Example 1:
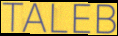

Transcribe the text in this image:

TALEB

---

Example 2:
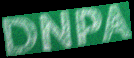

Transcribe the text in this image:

DNPA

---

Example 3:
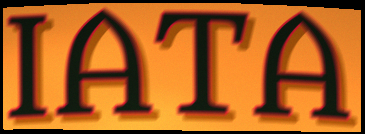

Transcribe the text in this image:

IATA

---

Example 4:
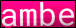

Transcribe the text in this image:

ambe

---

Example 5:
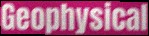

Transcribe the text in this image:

Geophysical